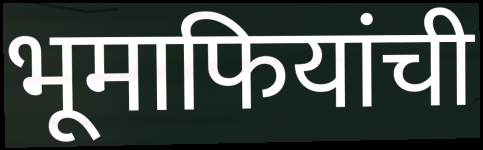
भूमाफियांची